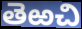
తెఱచి